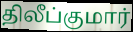
திலீப்குமார்